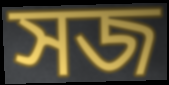
সজ